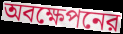
অবক্ষেপনের